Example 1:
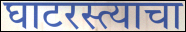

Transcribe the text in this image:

घाटरस्त्याचा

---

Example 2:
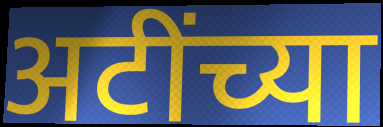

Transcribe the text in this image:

अटींच्या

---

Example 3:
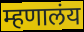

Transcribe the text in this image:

म्हणालंय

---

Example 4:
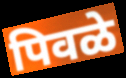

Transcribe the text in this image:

पिवळे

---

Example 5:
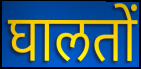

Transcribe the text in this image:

घालतों